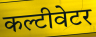
कल्टीवेटर